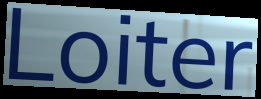
Loiter